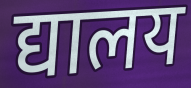
द्यालय